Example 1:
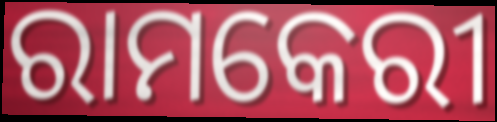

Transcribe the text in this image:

ରାମକେରୀ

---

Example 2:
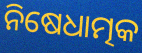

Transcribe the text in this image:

ନିଷେଧାତ୍ମକ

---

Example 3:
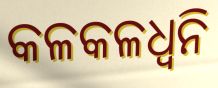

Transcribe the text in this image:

କଳକଳଧ୍ଵନି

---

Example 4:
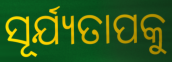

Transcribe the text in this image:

ସୂର୍ଯ୍ୟତାପକୁ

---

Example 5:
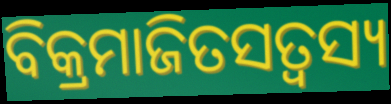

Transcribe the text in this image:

ବିକ୍ରମାଜିତସତ୍ଵସ୍ୟ